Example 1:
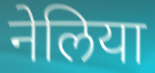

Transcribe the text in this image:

नेलिया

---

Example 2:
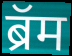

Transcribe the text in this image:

ब्रॅम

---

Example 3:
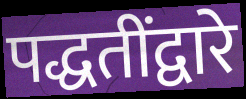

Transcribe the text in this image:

पद्धतींद्वारे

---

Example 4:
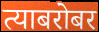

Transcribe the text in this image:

त्याबरोबर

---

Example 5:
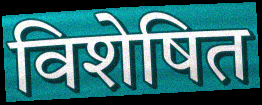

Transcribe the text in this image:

विशेषित